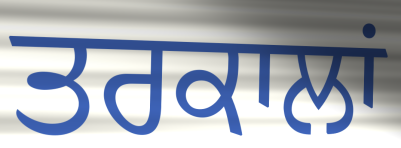
ਤਰਕਾਲਾਂ